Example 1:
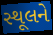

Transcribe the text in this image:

સ્થૂલને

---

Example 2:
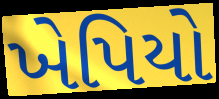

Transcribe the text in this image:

ખેપિયો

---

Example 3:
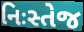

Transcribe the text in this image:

નિઃસ્તેજ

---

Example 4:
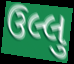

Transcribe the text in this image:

ઉલ્લુ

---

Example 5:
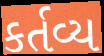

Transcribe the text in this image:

કર્તવ્ય